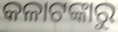
କଳାଟଙ୍କାରୁ